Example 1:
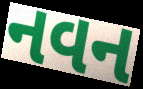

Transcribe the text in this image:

નવન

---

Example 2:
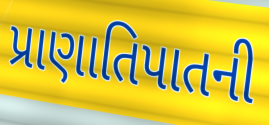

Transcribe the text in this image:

પ્રાણાતિપાતની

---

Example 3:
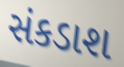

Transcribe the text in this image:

સંકડાશ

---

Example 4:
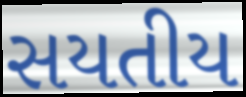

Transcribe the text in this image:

સયતીય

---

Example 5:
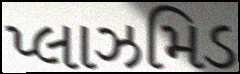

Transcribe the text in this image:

પ્લાઝમિડ